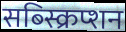
सब्स्क्रिप्शन